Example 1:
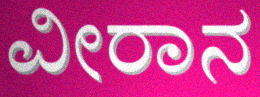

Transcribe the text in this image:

ವೀರಾನ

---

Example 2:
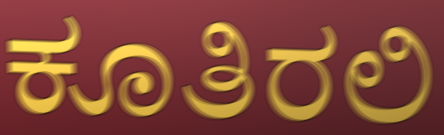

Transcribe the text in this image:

ಕೂತಿರಲಿ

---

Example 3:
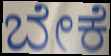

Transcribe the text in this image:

ಬೇಕೆ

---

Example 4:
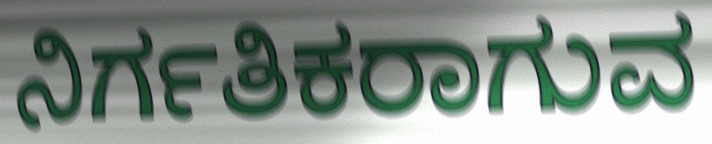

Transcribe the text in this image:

ನಿರ್ಗತಿಕರಾಗುವ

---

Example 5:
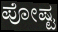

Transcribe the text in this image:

ಪೋಷ್ಟ